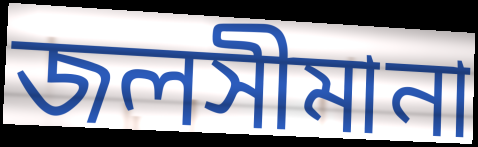
জলসীমানা